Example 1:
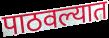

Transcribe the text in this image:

पाठवल्यात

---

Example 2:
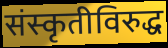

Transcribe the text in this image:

संस्कृतीविरुद्ध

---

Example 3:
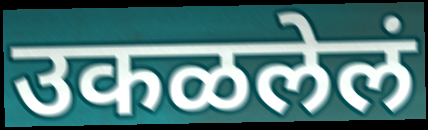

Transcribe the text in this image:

उकळलेलं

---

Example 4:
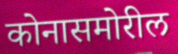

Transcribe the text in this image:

कोनासमोरील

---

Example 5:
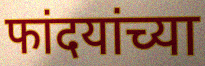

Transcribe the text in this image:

फांदयांच्या